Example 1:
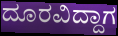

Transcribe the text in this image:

ದೂರವಿದ್ದಾಗ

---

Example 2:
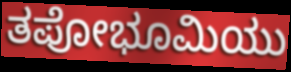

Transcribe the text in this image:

ತಪೋಭೂಮಿಯು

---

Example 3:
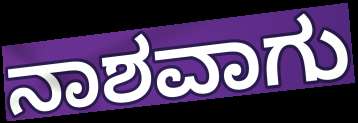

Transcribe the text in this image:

ನಾಶವಾಗು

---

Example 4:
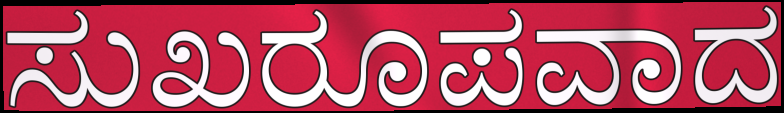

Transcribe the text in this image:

ಸುಖರೂಪವಾದ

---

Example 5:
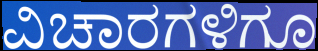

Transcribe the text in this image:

ವಿಚಾರಗಳಿಗೂ